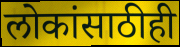
लोकांसाठीही